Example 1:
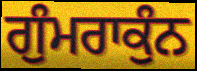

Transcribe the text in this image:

ਗੁੰਮਰਾਕੁੰਨ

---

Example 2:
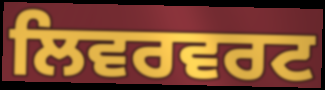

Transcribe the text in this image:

ਲਿਵਰਵਰਟ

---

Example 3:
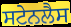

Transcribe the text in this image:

ਸਟੇਨਲੈਸ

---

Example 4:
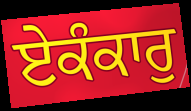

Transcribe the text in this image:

ਏਕੰਕਾਰੁ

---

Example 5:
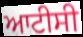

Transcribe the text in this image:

ਆਟੀਸੀ